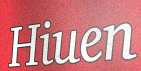
Hiuen